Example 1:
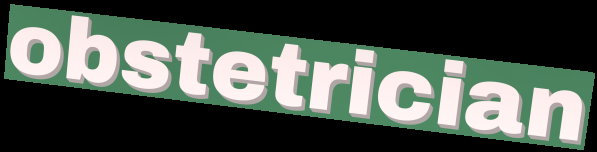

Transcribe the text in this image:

obstetrician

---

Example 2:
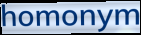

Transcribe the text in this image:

homonym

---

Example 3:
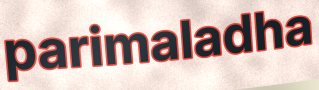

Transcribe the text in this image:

parimaladha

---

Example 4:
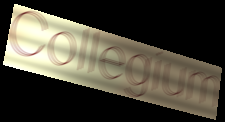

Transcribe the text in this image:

Collegium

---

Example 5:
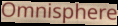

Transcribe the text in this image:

Omnisphere